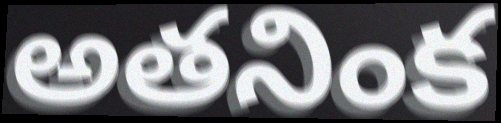
అతనింక